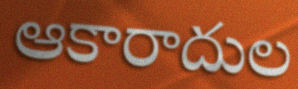
ఆకారాదుల